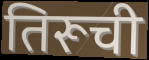
तिरूची